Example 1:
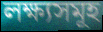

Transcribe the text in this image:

লক্ষ্যসমূহ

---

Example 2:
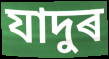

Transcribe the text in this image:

যাদুৰ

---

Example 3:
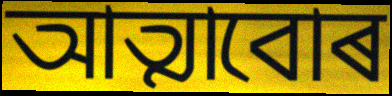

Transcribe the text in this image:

আত্মাবোৰ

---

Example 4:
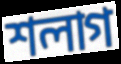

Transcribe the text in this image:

শলাগ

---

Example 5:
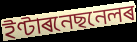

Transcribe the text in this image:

ইণ্টাৰনেছনেলৰ